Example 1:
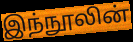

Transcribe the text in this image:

இந்நூலின்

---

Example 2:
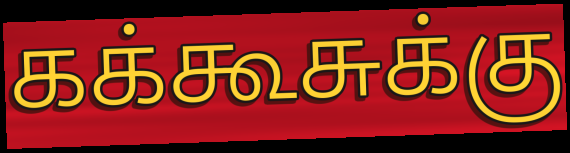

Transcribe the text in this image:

கக்கூசுக்கு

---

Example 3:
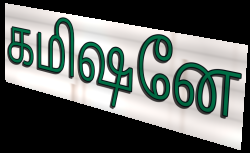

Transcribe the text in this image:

கமிஷனே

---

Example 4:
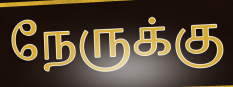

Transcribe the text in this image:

நேருக்கு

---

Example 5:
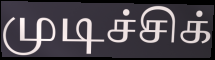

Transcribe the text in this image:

முடிச்சிக்